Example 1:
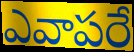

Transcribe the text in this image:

ఎవాపరే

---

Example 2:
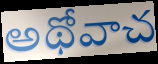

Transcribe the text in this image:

అథోవాచ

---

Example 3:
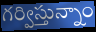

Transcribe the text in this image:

గర్విస్తున్నాం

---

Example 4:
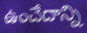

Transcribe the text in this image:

ఉంచేదాన్ని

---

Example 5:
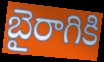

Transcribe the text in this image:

బైరాగికి